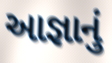
આજ્ઞાનું